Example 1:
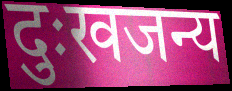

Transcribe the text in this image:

दुःखजन्य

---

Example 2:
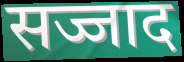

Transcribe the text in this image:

सज्‍जाद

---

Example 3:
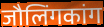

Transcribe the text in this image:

जौलिंगकांग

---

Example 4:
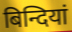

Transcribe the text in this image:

बिन्दियां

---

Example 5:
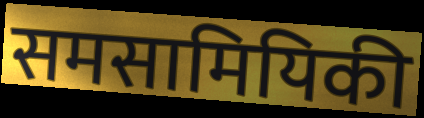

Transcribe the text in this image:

समसामियिकी